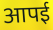
आपई